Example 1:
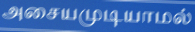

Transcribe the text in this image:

அசையமுடியாமல்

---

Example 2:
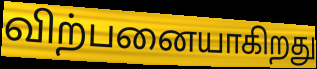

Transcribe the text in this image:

விற்பனையாகிறது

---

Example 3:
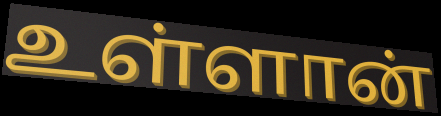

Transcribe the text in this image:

உள்ளான்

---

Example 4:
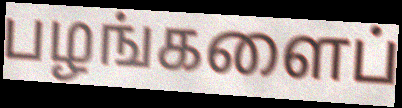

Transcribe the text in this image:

பழங்களைப்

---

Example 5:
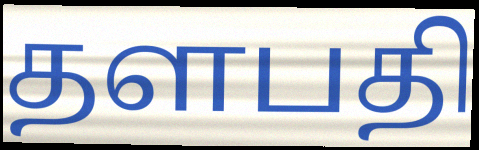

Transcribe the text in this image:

தளபதி